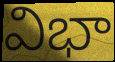
విభా